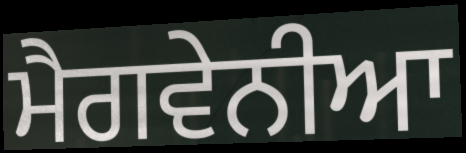
ਮੈਗਵੇਨੀਆ